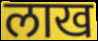
लाख